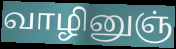
வாழினுஞ்